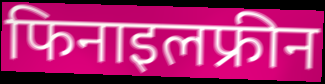
फिनाइलफ्रीन